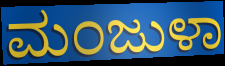
ಮಂಜುಳಾ